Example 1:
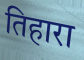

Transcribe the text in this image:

तिहारा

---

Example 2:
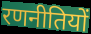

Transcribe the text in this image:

रणनीतियों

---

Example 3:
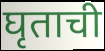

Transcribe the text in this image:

घृताची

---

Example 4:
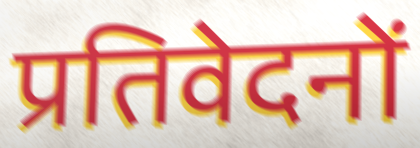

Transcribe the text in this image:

प्रतिवेदनों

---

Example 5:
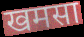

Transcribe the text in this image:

खमसा